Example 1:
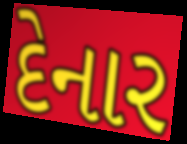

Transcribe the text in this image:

દેનાર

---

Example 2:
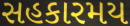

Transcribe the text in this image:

સહકારમય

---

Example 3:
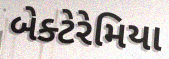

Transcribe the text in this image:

બેક્ટેરેમિયા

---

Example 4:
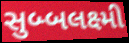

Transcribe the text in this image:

સુબ્બલક્ષ્મી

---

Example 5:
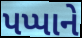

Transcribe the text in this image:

પપ્પાને